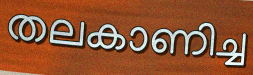
തലകാണിച്ച